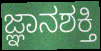
ಜ್ಞಾನಶಕ್ತಿ